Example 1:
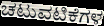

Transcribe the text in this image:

ಚಟುವಟಿಕೆಗಳ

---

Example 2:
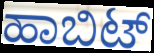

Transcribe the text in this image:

ಹಾಬಿಟ್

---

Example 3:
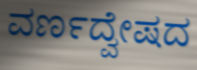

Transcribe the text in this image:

ವರ್ಣದ್ವೇಷದ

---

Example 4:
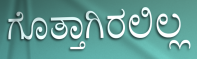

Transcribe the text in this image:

ಗೊತ್ತಾಗಿರಲಿಲ್ಲ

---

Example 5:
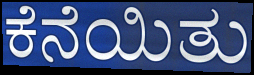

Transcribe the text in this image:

ಕೆನೆಯಿತು